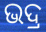
ଭଦ୍ର